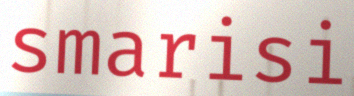
smarisi